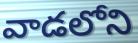
వాడలోని